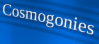
Cosmogonies